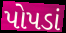
પોપડાં